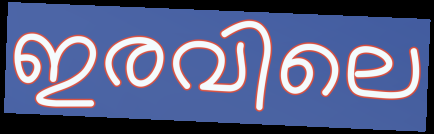
ഇരവിലെ